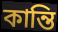
কান্তি